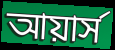
আয়ার্স